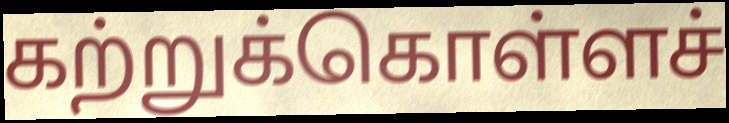
கற்றுக்கொள்ளச்